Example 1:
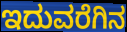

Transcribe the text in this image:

ಇದುವರೆಗಿನ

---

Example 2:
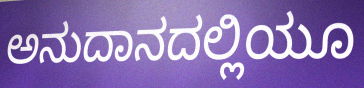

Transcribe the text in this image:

ಅನುದಾನದಲ್ಲಿಯೂ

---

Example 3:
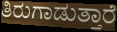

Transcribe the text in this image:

ತಿರುಗಾಡುತ್ತಾರೆ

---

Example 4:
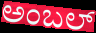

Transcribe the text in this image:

ಅಂಬಲ್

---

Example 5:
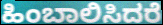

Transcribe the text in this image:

ಹಿಂಬಾಲಿಸಿದರೆ